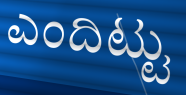
ಎಂದಿಟ್ಟು